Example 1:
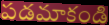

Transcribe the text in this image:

పడమాకండి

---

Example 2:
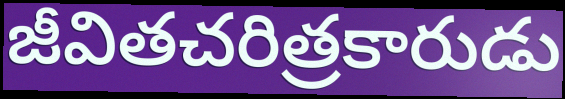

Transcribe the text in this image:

జీవితచరిత్రకారుడు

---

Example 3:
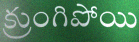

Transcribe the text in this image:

క్రుంగిపోయి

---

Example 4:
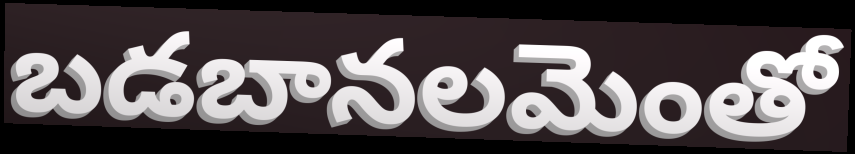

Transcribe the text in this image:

బడబానలమెంతో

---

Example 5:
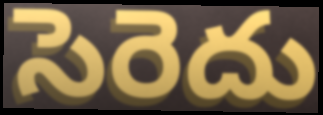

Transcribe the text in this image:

సెరెదు